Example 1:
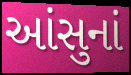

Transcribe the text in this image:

આંસુનાં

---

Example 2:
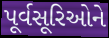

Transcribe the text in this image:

પૂર્વસૂરિઓને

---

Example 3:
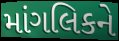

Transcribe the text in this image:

માંગલિકને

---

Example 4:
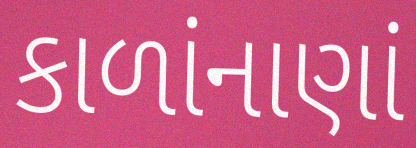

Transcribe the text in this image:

કાળાંનાણાં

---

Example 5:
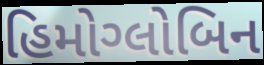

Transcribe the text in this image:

હિમોગ્લોબિન